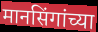
मानसिंगांच्या